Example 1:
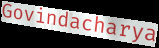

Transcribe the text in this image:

Govindacharya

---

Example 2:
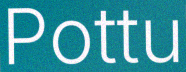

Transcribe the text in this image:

Pottu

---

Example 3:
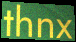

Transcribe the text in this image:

thnx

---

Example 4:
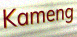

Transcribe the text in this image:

Kameng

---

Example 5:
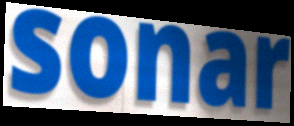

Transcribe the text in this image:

sonar